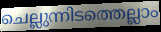
ചെല്ലുന്നിടത്തെല്ലാം